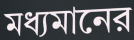
মধ্যমানের